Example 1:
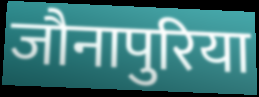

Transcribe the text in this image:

जौनापुरिया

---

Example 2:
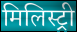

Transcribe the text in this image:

मिलिस्ट्री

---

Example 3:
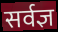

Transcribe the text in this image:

सर्वज्ञ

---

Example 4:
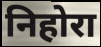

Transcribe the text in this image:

निहोरा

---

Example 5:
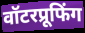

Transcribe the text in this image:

वॉटरप्रूफिंग